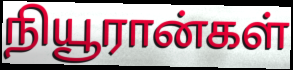
நியூரான்கள்